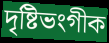
দৃষ্টিভংগীক